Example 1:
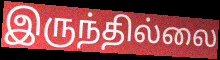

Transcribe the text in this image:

இருந்தில்லை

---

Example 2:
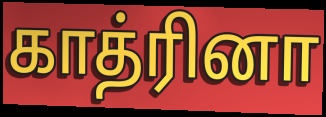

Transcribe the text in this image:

காத்ரினா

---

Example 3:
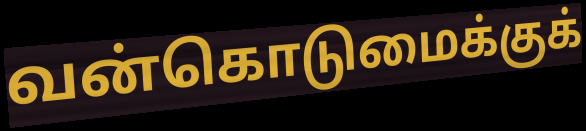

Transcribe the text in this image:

வன்கொடுமைக்குக்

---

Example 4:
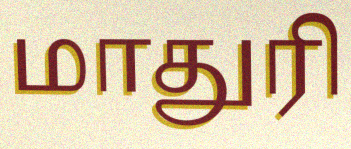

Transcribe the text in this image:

மாதுரி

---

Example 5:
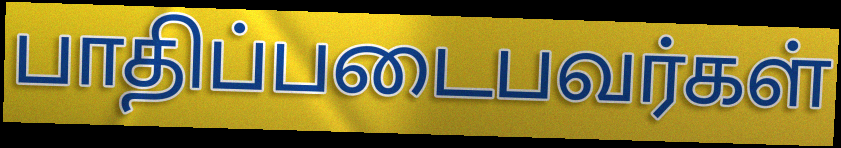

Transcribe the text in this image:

பாதிப்படைபவர்கள்